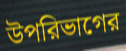
উপরিভাগের